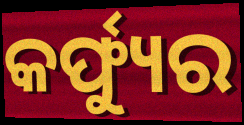
କର୍ଫ୍ୟୁର